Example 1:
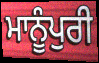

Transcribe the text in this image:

ਮਾਨੂੰਪੁਰੀ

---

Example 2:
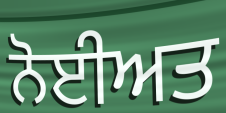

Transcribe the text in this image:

ਨੋਈਅਤ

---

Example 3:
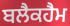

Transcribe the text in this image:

ਬਲੈਕਹੈਮ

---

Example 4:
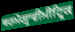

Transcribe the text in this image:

ਥਰਮੋਗ੍ਰਾਵੀਮੀਟ੍ਰਿਕ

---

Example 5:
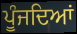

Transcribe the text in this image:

ਪੂੰਜਦਿਆਂ